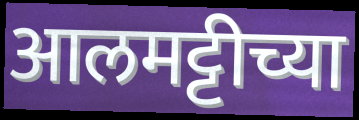
आलमट्टीच्या